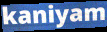
kaniyam